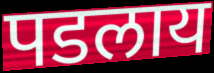
पडलाय